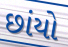
છાંયો